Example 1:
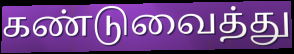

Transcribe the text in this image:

கண்டுவைத்து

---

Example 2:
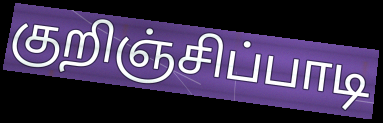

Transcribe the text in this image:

குறிஞ்சிப்பாடி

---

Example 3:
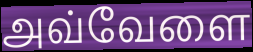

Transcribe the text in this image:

அவ்வேளை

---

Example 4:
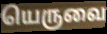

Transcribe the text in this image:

யெருவை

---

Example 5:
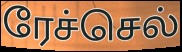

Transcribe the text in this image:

ரேச்செல்